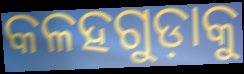
କଳହଗୁଡ଼ାକୁ